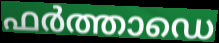
ഫർത്താഡെ